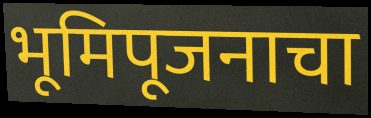
भूमिपूजनाचा